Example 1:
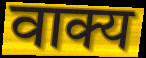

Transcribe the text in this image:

वाक्य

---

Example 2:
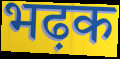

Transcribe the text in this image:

भढ़क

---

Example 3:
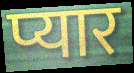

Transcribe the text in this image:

प्‍यार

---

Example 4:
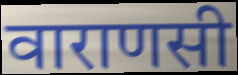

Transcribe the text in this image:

वाराणसी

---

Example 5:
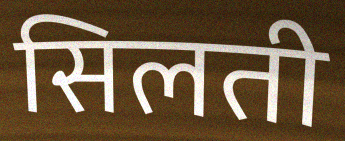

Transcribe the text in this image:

सिलती